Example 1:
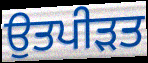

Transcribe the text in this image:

ਉਤਪੀੜਤ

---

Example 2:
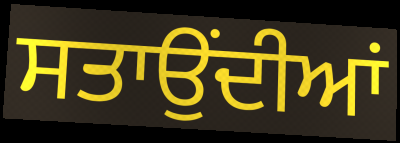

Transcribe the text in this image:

ਸਤਾਉਂਦੀਆਂ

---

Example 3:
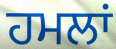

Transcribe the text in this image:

ਹਮਲਾਂ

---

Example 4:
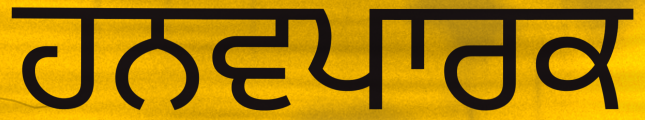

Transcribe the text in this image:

ਹਨਵਪਾਰਕ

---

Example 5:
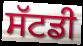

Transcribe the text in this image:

ਸੱਟਡੀ